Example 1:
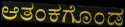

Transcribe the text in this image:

ಆತಂಕಗೊಂಡ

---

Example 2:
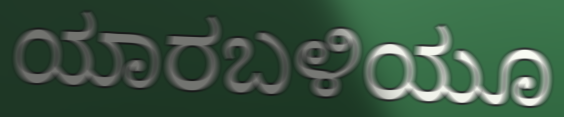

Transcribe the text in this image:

ಯಾರಬಳಿಯೂ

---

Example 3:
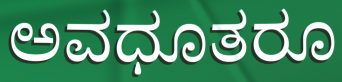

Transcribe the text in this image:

ಅವಧೂತರೂ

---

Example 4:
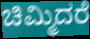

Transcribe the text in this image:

ಚಿಮ್ಮಿದರೆ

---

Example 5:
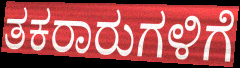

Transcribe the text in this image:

ತಕರಾರುಗಳಿಗೆ